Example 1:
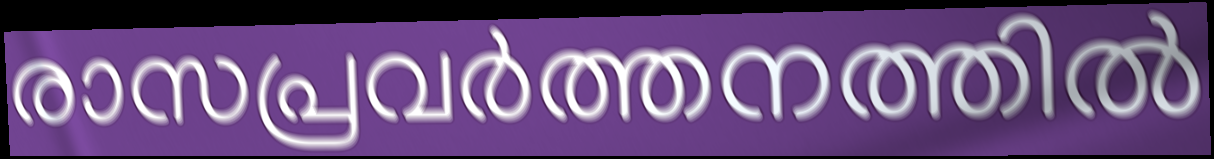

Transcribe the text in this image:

രാസപ്രവർത്തനത്തിൽ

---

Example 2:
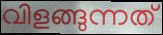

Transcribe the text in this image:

വിളങ്ങുന്നത്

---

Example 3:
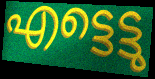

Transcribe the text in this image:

എട്ടെട്ടു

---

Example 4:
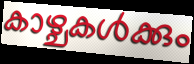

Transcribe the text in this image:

കാഴ്ചകൾക്കും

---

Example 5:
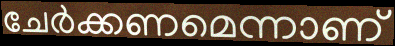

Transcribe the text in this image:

ചേർക്കണമെന്നാണ്